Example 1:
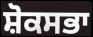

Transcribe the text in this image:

ਸ਼ੋਕਸਭਾ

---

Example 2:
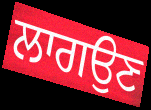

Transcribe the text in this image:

ਲਾਗਉਣ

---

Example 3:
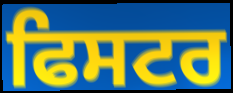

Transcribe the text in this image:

ਫਿਸਟਰ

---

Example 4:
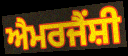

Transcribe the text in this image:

ਐਮਰਜੈਂਸ਼ੀ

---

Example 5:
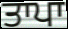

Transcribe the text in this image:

ਤਾਪਾ